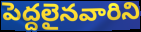
పెద్దలైనవారిని